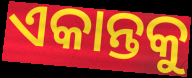
ଏକାନ୍ତକୁ